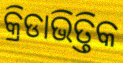
କ୍ରିଡାଭିତ୍ତିକ